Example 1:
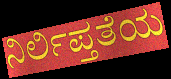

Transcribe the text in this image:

ನಿರ್ಲಿಪ್ತತೆಯ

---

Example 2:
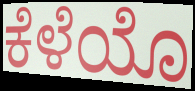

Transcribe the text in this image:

ಕೆಳೆಯೊ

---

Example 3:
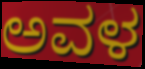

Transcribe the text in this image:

ಅವಳ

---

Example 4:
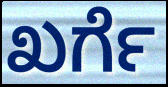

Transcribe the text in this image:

ಖರ್ಗೆ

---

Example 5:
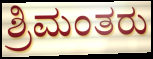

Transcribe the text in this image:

ಶ್ರಿಮಂತರು